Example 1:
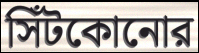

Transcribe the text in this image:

সিঁটকোনোর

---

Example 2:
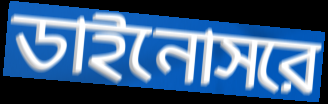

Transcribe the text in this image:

ডাইনোসরে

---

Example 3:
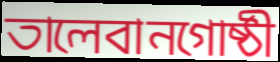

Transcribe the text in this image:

তালেবানগোষ্ঠী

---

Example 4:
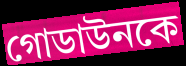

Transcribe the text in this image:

গোডাউনকে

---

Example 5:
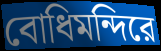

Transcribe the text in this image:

বোধিমন্দিরে